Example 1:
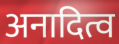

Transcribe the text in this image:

अनादित्व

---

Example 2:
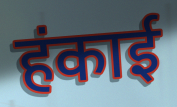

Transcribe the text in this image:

हंकाई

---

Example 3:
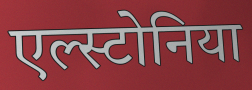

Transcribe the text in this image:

एल्स्टोनिया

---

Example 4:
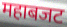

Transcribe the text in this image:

महाबजट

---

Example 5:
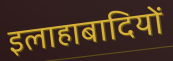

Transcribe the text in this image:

इलाहाबादियों